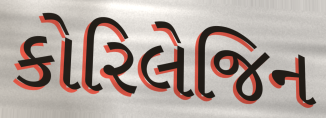
કોરિલેજિન